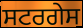
ਸਟਰਗੇਸ